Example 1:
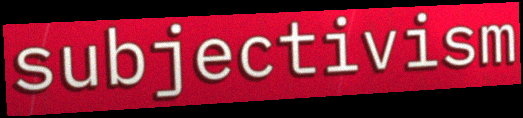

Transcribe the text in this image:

subjectivism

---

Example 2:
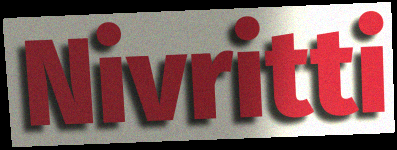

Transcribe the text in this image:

Nivritti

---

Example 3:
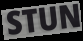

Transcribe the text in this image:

STUN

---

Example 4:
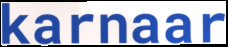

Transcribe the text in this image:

karnaar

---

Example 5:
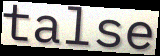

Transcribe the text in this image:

talse